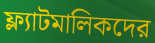
ফ্ল্যাটমালিকদের